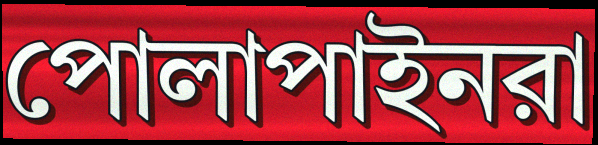
পোলাপাইনরা